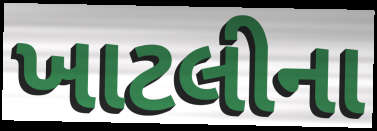
ખાટલીના